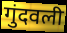
गुंदवली